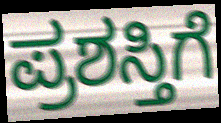
ಪ್ರಶಸ್ತಿಗೆ